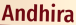
Andhira